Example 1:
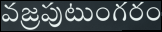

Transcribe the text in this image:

వజ్రపుటుంగరం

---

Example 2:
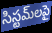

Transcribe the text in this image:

సిస్టమ్‌లపై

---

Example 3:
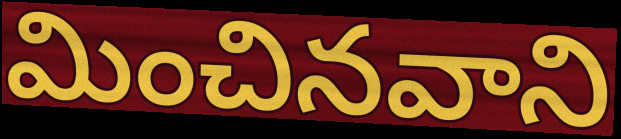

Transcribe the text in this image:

మించినవాని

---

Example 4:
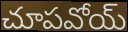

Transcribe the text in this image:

చూపవోయ్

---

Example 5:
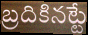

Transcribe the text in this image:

బ్రదికినట్టే